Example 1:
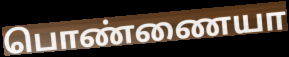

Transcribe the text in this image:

பொண்ணையா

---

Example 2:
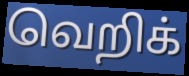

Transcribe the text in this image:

வெறிக்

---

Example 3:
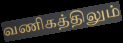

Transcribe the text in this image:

வணிகத்திலும்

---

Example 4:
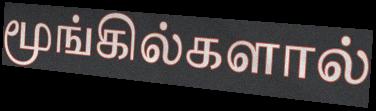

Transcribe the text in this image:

மூங்கில்களால்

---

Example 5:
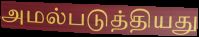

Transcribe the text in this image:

அமல்படுத்தியது